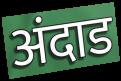
अंदाड